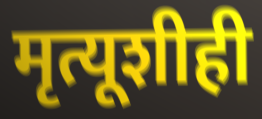
मृत्यूशीही